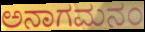
ಅನಾಗಮನಂ